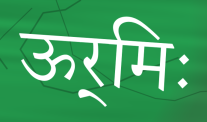
ऊर्मिः